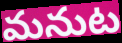
మనుట